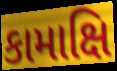
કામાક્ષિ